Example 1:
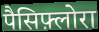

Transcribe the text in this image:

पैसिफ़्लोरा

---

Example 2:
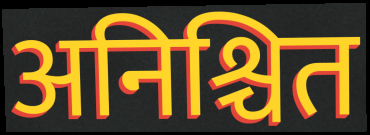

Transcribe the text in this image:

अनिश्चित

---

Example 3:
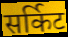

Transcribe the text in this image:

सर्किट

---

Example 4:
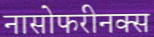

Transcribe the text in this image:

नासोफरीनक्स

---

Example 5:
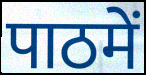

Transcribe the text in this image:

पाठमें